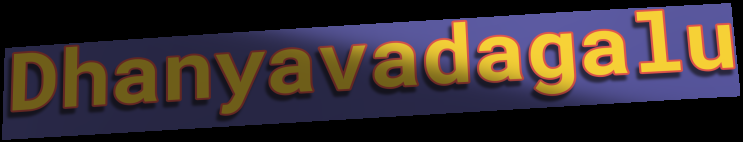
Dhanyavadagalu